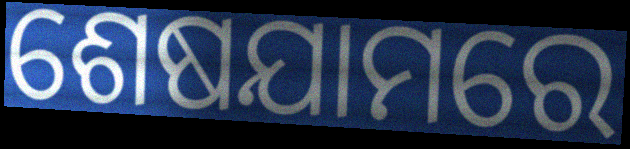
ଶେଷଯାମରେ